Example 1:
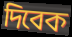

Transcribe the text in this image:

দিবেক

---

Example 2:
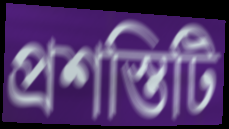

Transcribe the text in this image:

প্রশস্তিটি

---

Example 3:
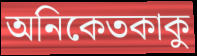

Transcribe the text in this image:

অনিকেতকাকু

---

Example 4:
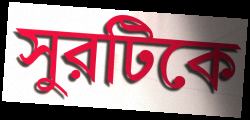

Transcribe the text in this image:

সুরটিকে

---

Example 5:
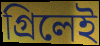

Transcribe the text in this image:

গ্রিলেই